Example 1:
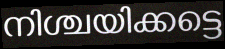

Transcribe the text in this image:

നിശ്ചയിക്കട്ടെ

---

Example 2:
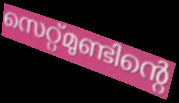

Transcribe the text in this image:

സെറ്റ്മുണ്ടിന്റെ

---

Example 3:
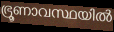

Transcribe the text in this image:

ഭ്രൂണാവസ്ഥയിൽ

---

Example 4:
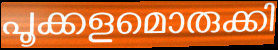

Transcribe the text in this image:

പൂക്കളമൊരുക്കി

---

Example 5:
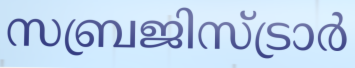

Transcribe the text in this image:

സബ്രജിസ്ട്രാർ